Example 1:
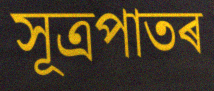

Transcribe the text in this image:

সূত্ৰপাতৰ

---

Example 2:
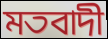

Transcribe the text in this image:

মতবাদী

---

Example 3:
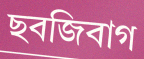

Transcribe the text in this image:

ছবজিবাগ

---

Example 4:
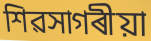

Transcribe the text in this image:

শিৱসাগৰীয়া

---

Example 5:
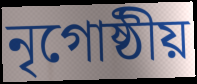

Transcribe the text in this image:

নৃগোষ্ঠীয়